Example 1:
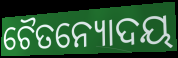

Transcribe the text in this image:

ଚୈତନ୍ୟୋଦୟ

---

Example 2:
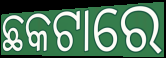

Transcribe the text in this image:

ଛକଟାରେ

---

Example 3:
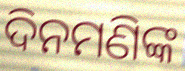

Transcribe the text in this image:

ଦିନମଣିଙ୍କ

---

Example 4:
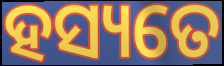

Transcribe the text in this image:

ହସ୍ୟତେ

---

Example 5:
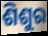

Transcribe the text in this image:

ଶିଶୁର